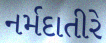
નર્મદાતીરે